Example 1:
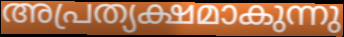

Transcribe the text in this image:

അപ്രത്യക്ഷമാകുന്നു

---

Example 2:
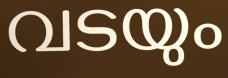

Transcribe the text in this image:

വടയും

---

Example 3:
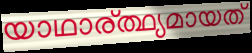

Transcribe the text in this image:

യാഥാര്ത്ഥ്യമായത്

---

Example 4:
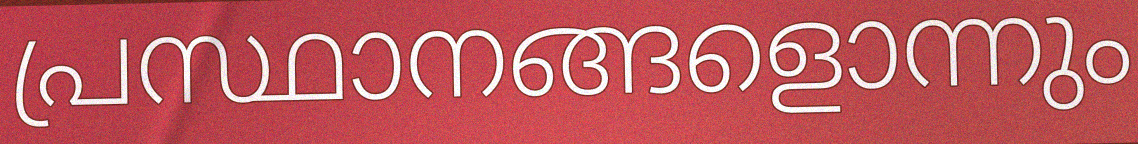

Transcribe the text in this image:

പ്രസ്ഥാനങ്ങളൊന്നും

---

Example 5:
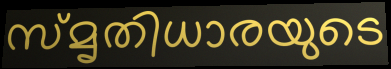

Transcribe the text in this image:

സ്മൃതിധാരയുടെ